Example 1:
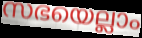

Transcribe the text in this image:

സഭയെല്ലാം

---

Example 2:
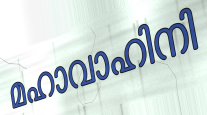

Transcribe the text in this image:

മഹാവാഹിനി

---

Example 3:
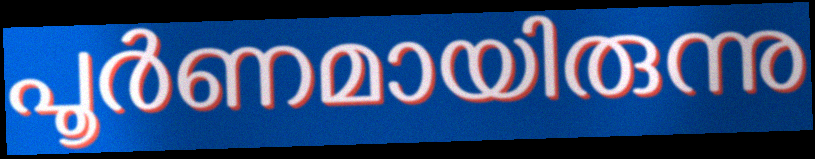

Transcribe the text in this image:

പൂർണമായിരുന്നു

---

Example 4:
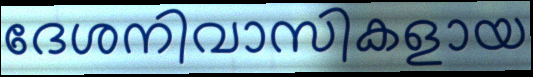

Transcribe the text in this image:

ദേശനിവാസികളായ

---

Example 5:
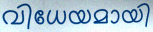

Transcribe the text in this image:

വിധേയമായി